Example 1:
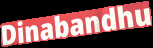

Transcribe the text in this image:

Dinabandhu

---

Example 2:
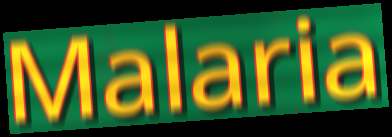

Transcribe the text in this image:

Malaria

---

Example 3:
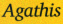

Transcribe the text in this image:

Agathis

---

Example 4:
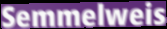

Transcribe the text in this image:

Semmelweis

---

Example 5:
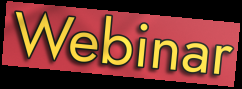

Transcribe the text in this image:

Webinar